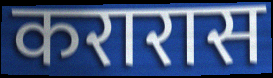
करारास